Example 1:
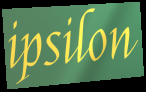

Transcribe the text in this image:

ipsilon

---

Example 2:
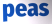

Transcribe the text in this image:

peas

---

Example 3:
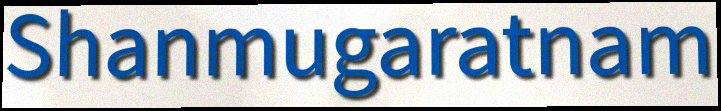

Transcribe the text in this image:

Shanmugaratnam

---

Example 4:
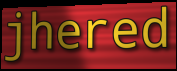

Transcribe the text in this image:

jhered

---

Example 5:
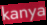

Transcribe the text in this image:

kanya